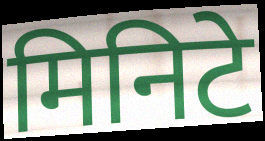
मिनिटे